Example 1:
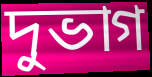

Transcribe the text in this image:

দুভাগ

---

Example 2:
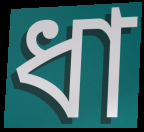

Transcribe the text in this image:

ধা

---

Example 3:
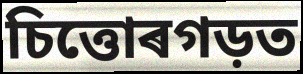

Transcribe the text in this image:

চিত্তোৰগড়ত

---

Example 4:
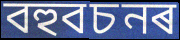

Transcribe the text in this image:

বহুবচনৰ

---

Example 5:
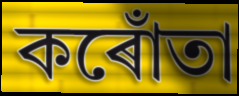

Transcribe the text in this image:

কৰোঁতা